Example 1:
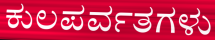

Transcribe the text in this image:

ಕುಲಪರ್ವತಗಳು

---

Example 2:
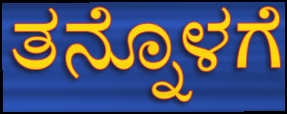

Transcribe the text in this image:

ತನ್ನೊಳಗೆ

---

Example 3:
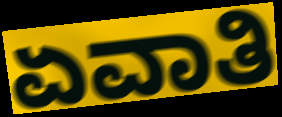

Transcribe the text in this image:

ಏವಾತಿ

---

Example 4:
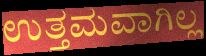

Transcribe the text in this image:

ಉತ್ತಮವಾಗಿಲ್ಲ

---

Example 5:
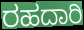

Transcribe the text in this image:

ರಹದಾರಿ